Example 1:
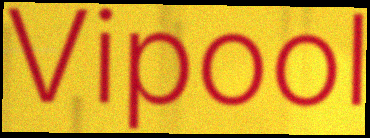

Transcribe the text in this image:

Vipool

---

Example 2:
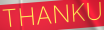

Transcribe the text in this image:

THANKU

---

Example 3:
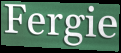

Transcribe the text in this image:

Fergie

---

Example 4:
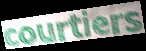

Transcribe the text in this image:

courtiers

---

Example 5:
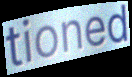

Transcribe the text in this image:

tioned